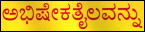
ಅಭಿಷೇಕತೈಲವನ್ನು